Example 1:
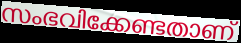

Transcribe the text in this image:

സംഭവിക്കേണ്ടതാണ്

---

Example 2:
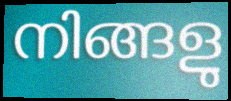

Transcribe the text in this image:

നിങ്ങളു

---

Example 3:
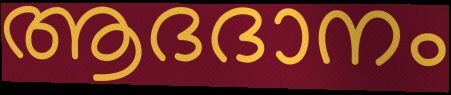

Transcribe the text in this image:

ആദദാനം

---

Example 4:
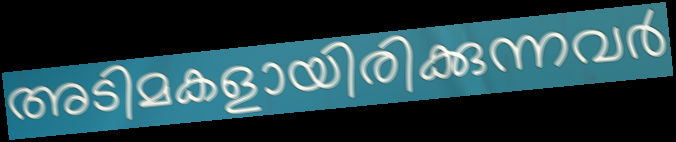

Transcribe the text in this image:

അടിമകളായിരിക്കുന്നവർ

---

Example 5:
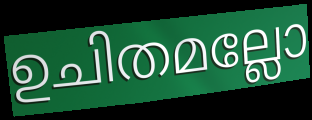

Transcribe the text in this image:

ഉചിതമല്ലോ